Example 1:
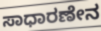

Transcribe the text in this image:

ಸಾಧಾರಣೇನ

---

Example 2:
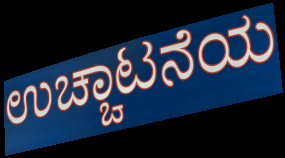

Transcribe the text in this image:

ಉಚ್ಚಾಟನೆಯ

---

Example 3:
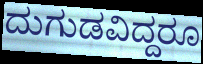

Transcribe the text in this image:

ದುಗುಡವಿದ್ದರೂ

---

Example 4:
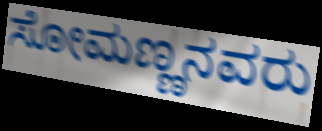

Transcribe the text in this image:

ಸೋಮಣ್ಣನವರು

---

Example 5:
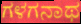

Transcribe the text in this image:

ಗಳಗನಾಥ